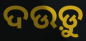
ଦଉଡ଼ୁ